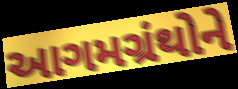
આગમગ્રંથોને